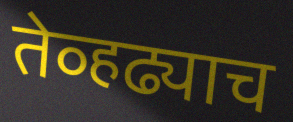
तेव्हढ्याच